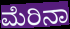
ಮೆರಿನಾ